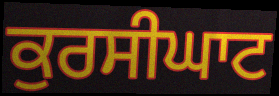
ਕੁਰਸੀਘਾਟ